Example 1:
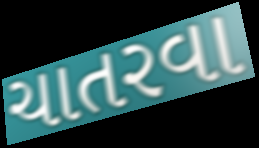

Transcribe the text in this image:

ચાતરવા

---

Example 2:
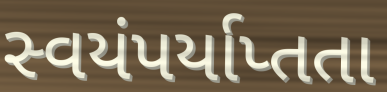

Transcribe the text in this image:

સ્વયંપર્યાપ્તતા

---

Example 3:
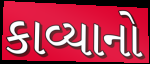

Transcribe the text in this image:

કાવ્યાનો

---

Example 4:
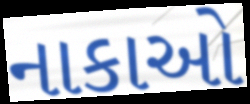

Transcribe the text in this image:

નાકાઓ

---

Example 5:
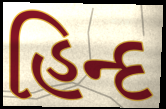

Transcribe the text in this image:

હિન્દ